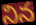
నిన